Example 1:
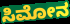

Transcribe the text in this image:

ಸಿಮೋನ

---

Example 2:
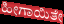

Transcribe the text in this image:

ಹೀಗಾಯಿತೇ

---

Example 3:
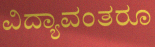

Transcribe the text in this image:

ವಿದ್ಯಾವಂತರೂ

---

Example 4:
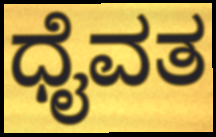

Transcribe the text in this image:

ಧೈವತ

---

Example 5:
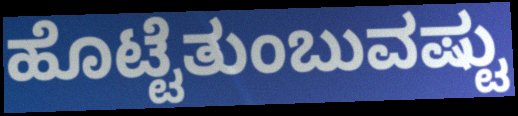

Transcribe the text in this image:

ಹೊಟ್ಟೆತುಂಬುವಷ್ಟು